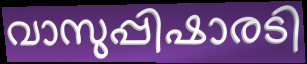
വാസുപ്പിഷാരടി